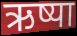
ऋष्या